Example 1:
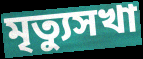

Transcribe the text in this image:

মৃত্যুসখা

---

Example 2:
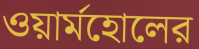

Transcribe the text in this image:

ওয়ার্মহোলের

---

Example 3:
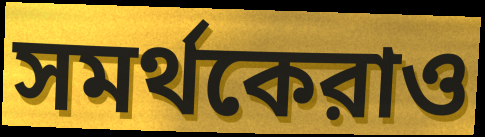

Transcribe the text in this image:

সমর্থকেরাও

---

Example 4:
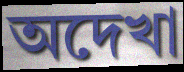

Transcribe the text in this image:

অদেখা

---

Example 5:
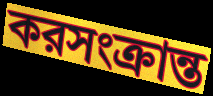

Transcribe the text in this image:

করসংক্রান্ত